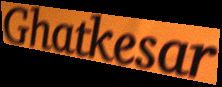
Ghatkesar